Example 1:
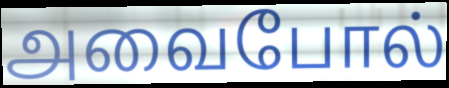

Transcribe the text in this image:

அவைபோல்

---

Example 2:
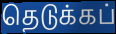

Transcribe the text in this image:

தெடுக்கப்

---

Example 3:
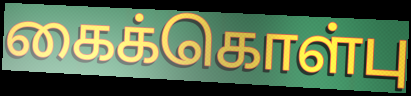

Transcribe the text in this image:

கைக்கொள்பு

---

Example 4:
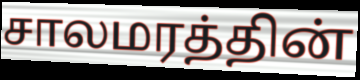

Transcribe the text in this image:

சாலமரத்தின்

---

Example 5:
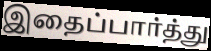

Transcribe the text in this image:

இதைப்பார்த்து